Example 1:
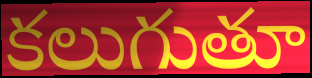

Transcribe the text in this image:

కలుగుతూ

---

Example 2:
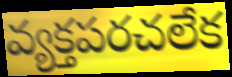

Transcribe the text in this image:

వ్యక్తపరచలేక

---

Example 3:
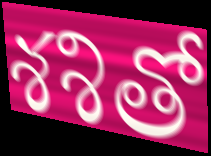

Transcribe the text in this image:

శశితో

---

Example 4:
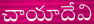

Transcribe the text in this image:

చాయాదేవి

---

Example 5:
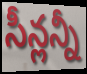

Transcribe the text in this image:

సీన్లన్నీ